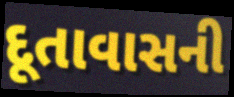
દૂતાવાસની